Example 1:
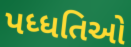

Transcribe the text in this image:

પધ્ધતિઓ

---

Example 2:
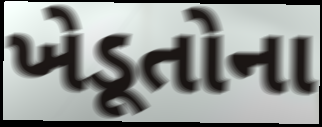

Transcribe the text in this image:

ખેડૂતોના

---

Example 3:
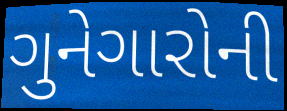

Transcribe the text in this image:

ગુનેગારોની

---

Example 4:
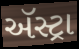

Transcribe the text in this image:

ઍસ્ટ્રા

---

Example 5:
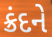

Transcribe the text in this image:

ક્રંદને